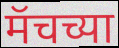
मॅचच्या